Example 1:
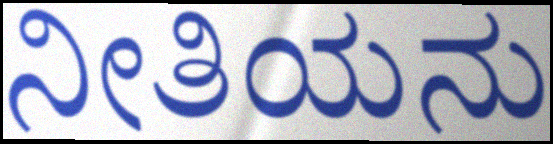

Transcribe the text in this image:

ನೀತಿಯನು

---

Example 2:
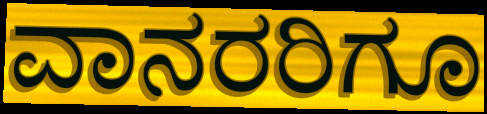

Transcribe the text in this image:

ವಾನರರಿಗೂ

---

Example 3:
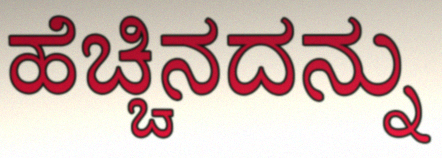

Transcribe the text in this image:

ಹೆಚ್ಚಿನದನ್ನು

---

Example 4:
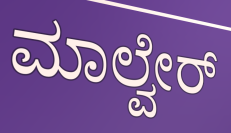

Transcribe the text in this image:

ಮಾಲ್ವೇರ್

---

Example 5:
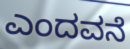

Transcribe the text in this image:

ಎಂದವನೆ